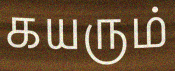
கயரும்